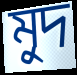
মুদ